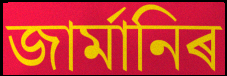
জাৰ্মানিৰ